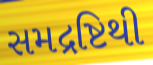
સમદ્રષ્ટિથી